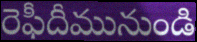
రెఫీదీమునుండి